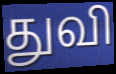
துவி